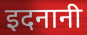
इदनानी